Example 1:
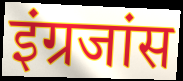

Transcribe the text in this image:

इंग्रजांस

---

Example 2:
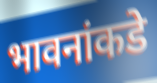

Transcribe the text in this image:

भावनांकडे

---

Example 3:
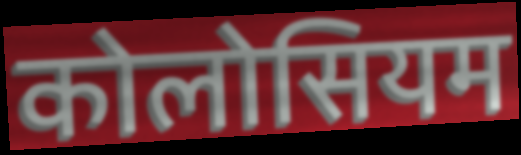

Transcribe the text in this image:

कोलोसियम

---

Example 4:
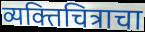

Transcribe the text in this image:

व्यक्तिचित्राचा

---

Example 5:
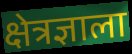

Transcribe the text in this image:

क्षेत्रज्ञाला